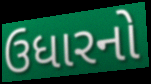
ઉધારનો